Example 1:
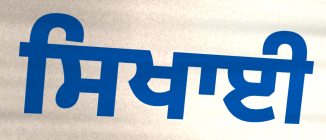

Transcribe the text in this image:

ਸਿਖਾਈ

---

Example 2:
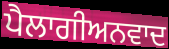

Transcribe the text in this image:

ਪੈਲਾਗੀਅਨਵਾਦ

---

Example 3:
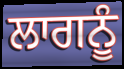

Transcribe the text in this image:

ਲਾਗਨੂੰ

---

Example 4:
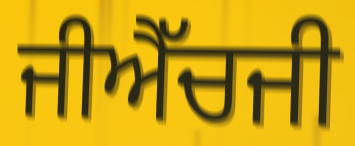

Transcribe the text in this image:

ਜੀਐੱਚਜੀ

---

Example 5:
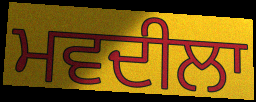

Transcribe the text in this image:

ਮਵਦੀਲਾ